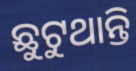
ଛୁଟୁଥାନ୍ତି